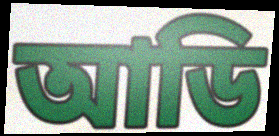
আডি